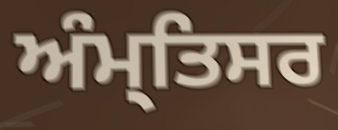
ਅੰਮ੍ਤਿਸਰ